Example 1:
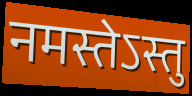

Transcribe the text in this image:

नमस्तेऽस्तु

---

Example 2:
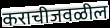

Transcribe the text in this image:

कराचीजवळील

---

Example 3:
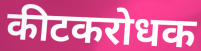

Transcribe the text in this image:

कीटकरोधक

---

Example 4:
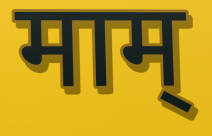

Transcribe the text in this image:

माम्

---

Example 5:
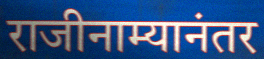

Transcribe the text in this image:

राजीनाम्यानंतर